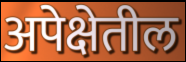
अपेक्षेतील